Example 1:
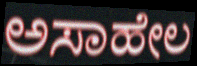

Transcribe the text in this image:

ಅಸಾಹೇಲ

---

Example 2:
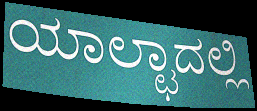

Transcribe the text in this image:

ಯಾಲ್ಟಾದಲ್ಲಿ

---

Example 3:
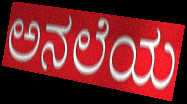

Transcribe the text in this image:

ಅನಲೆಯ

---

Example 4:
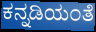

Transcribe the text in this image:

ಕನ್ನಡಿಯಂತೆ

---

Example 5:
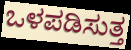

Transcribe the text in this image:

ಒಳಪಡಿಸುತ್ತ